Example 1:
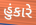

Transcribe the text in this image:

હુંકારે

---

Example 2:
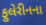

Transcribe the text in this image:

ફુલેરીનના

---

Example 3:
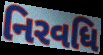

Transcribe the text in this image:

નિરવધિ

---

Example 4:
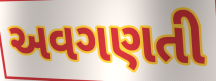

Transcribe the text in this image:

અવગણતી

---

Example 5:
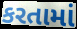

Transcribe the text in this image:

કરતામાં